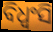
ବିଧ୍ୱଂସି